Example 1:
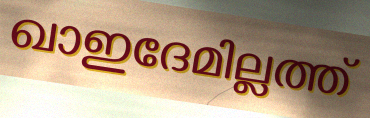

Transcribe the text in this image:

ഖാഇദേമില്ലത്ത്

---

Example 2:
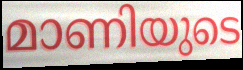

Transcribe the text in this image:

മാണിയുടെ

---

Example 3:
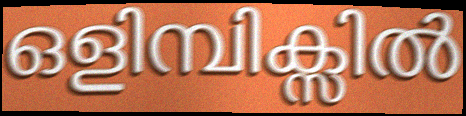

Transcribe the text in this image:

ഒളിമ്പിക്സിൽ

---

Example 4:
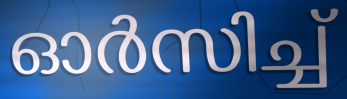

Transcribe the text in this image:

ഓർസിച്ച്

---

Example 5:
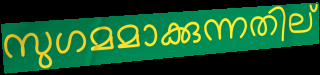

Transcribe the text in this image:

സുഗമമാക്കുന്നതില്